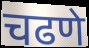
चढणे